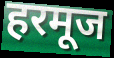
हरमूज